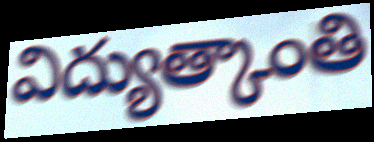
విద్యుత్కాంతి